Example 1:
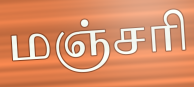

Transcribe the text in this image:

மஞ்சரி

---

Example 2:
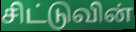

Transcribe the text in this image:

சிட்டுவின்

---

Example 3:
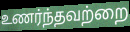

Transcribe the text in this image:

உணர்ந்தவற்றை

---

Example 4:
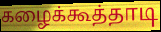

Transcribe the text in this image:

கழைக்கூத்தாடி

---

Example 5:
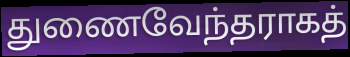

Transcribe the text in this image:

துணைவேந்தராகத்